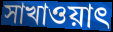
সাখাওয়াৎ